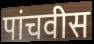
पांचवीस